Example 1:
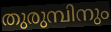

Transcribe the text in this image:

തുരുമ്പിനും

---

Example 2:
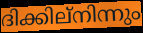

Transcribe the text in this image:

ദിക്കില്നിന്നും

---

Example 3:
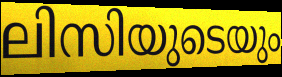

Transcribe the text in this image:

ലിസിയുടെയും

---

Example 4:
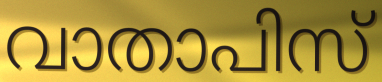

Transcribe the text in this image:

വാതാപിസ്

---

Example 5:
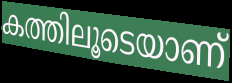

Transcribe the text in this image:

കത്തിലൂടെയാണ്